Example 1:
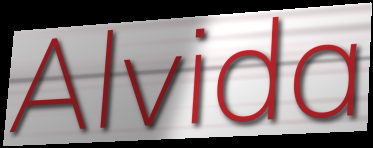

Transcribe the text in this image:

Alvida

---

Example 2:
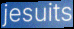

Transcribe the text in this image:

jesuits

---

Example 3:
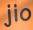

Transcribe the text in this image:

jio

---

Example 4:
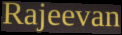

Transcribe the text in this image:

Rajeevan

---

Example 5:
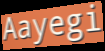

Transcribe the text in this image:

Aayegi